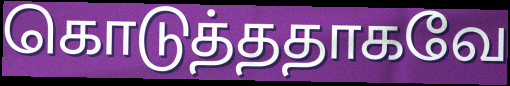
கொடுத்ததாகவே